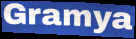
Gramya